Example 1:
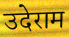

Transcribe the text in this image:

उदेराम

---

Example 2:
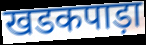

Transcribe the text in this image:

खडकपाड़ा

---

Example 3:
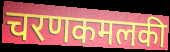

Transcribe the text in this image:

चरणकमलकी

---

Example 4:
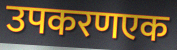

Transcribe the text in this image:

उपकरणएक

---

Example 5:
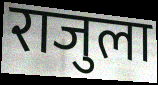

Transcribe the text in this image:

राजुला